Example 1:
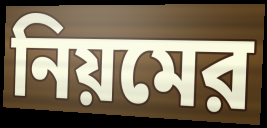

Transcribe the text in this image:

নিয়মের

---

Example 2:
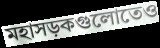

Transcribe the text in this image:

মহাসড়কগুলোতেও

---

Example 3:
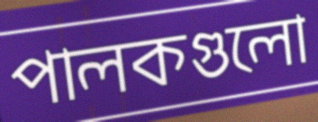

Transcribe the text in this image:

পালকগুলো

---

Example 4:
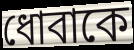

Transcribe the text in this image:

ধোবাকে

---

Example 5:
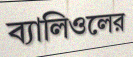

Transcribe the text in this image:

ব্যালিওলের